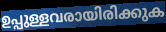
ഉപ്പുള്ളവരായിരിക്കുക